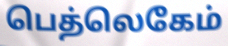
பெத்லெகேம்